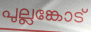
പുല്ലങ്കോട്